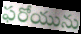
ఫరోయును